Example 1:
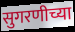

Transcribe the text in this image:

सुगरणीच्या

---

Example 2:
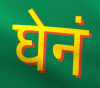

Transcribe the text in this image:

घेनं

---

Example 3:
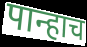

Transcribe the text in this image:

पान्हाच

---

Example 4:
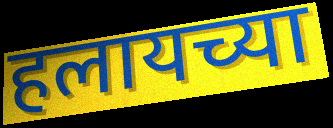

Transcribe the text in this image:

हलायच्या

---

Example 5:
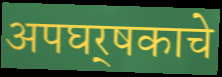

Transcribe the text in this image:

अपघर्षकाचे